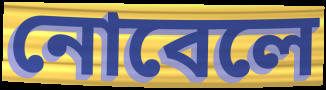
নোবেলে